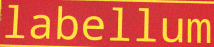
labellum